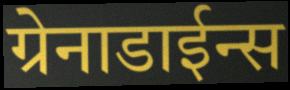
ग्रेनाडाईन्स